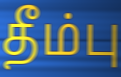
தீம்பு